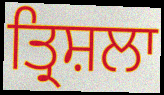
ਤ੍ਰਿਸ਼ਲਾ